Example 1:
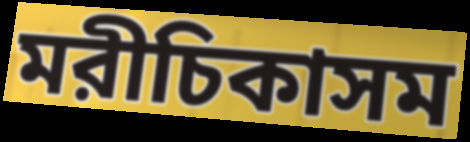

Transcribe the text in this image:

মরীচিকাসম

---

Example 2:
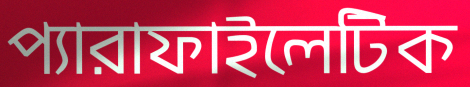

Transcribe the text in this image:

প্যারাফাইলেটিক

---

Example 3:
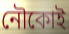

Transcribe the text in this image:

নৌকোই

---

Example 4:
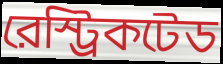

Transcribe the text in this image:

রেস্ট্রিকটেড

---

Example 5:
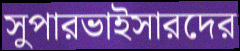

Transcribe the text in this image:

সুপারভাইসারদের